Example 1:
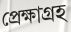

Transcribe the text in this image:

প্রেক্ষাগ্রহ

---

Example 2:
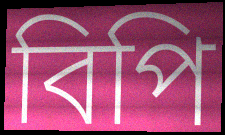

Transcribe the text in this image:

বিপি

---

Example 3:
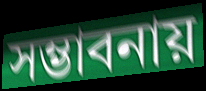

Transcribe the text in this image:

সম্ভাবনায়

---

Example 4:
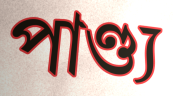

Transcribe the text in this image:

পাণ্ড্য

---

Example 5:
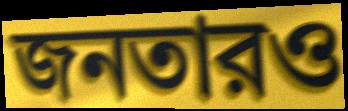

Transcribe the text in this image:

জনতারও